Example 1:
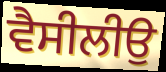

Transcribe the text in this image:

ਵੈਸੀਲੀਉ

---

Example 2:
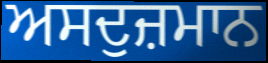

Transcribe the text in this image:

ਅਸਦੁਜ਼ਮਾਨ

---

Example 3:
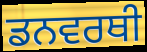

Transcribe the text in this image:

ਡਨਵਰਥੀ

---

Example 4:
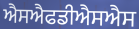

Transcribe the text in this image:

ਐਸਐਫਡੀਐਸਐਸ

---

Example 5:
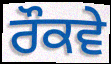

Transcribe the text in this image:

ਰੌਕਵੇ